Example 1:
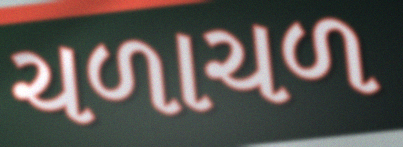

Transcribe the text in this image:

ચળાચળ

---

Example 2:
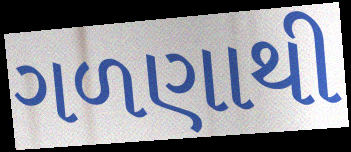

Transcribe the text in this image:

ગળણાથી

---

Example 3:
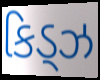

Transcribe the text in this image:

કિડ્ઝ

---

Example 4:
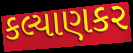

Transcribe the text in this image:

કલ્યાણકર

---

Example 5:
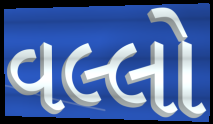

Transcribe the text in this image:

વલ્લો